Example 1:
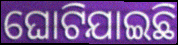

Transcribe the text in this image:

ଘୋଟିଯାଇଛି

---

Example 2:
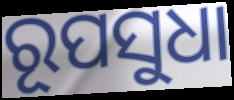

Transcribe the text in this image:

ରୂପସୁଧା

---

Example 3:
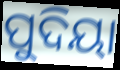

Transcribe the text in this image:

ପୁଦିୟା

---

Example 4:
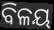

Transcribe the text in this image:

ବିଳୟ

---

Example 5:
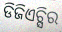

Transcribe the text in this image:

ଡିଜିଏଚ୍ସିର